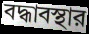
বদ্ধাবস্থার